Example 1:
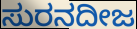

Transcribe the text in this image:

ಸುರನದೀಜ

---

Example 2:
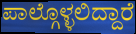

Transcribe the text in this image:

ಪಾಲ್ಗೊಳ್ಳಲಿದ್ದಾರೆ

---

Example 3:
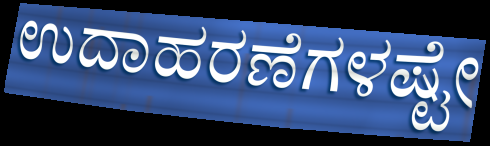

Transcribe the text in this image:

ಉದಾಹರಣೆಗಳಷ್ಟೇ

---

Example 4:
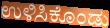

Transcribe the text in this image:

ಉಳಿಸಿಕೊಂಡು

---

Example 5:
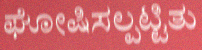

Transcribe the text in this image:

ಘೋಷಿಸಲ್ಪಟ್ಟಿತು